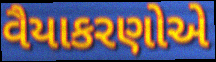
વૈયાકરણોએ